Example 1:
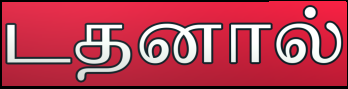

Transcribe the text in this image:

டதனால்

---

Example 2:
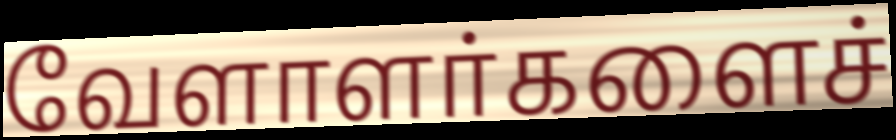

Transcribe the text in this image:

வேளாளர்களைச்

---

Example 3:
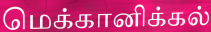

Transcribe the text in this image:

மெக்கானிக்கல்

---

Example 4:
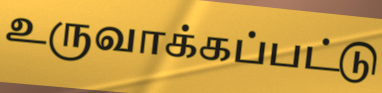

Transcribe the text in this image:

உருவாக்கப்பட்டு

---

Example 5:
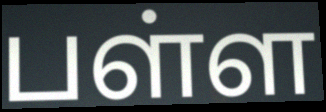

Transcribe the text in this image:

பள்ள